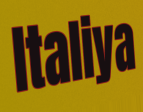
Italiya